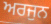
ਅਰਜੁਨ